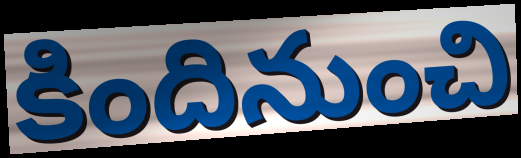
కిందినుంచి